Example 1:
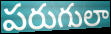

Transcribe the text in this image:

పరుగులా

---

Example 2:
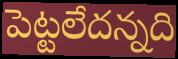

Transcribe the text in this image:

పెట్టలేదన్నది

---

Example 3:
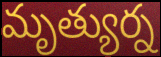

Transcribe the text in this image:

మృత్యుర్న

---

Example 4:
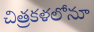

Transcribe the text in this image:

చిత్రకళలోనూ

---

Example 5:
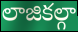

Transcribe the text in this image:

లాజికల్గా